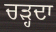
ਚੜ੍ਹਦਾ